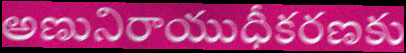
అణునిరాయుధీకరణకు